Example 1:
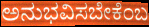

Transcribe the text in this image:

ಅನುಭವಿಸಬೇಕೆಂಬ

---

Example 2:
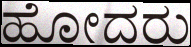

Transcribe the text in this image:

ಹೋದರು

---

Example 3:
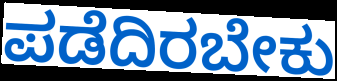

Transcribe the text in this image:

ಪಡೆದಿರಬೇಕು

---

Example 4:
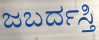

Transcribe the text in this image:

ಜಬರ್ದಸ್ತಿ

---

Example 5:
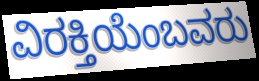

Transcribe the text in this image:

ವಿರಕ್ತಿಯೆಂಬವರು